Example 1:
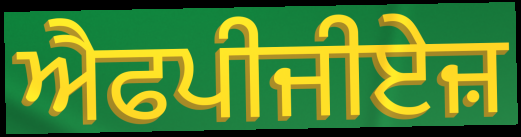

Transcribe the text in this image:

ਐਫਪੀਜੀਏਜ਼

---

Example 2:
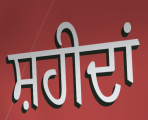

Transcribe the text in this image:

ਸ਼ਹੀਦਾਂ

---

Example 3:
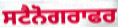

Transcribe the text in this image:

ਸਟੈਨੋਗਰਾਫਰ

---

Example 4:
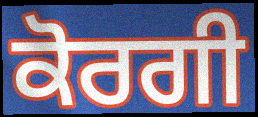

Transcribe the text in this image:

ਕੋਰਗੀ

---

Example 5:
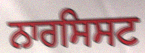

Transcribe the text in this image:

ਨਾਰਸਿਸਟ